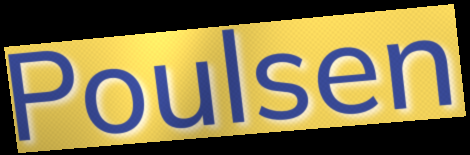
Poulsen